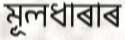
মূলধাৰাৰ